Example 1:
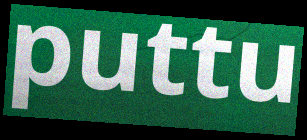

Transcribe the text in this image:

puttu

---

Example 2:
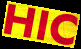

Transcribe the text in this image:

HIC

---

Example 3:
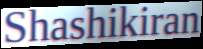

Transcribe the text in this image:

Shashikiran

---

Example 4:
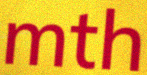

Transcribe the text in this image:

mth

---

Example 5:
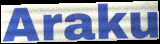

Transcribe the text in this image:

Araku